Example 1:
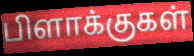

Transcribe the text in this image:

பிளாக்குகள்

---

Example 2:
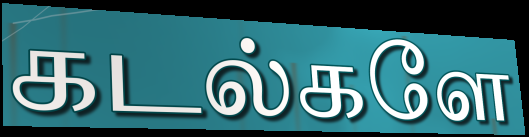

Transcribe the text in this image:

கடல்களே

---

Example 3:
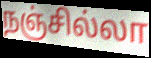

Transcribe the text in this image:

நஞ்சில்லா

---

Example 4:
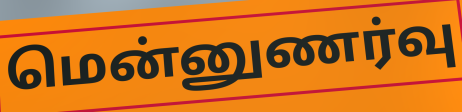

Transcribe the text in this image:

மென்னுணர்வு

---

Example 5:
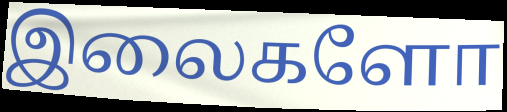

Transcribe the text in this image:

இலைகளோ